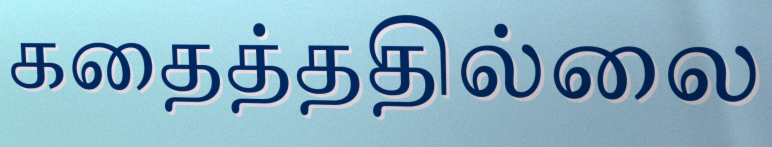
கதைத்ததில்லை